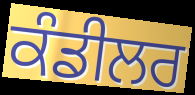
ਕੰਡੀਲਰ